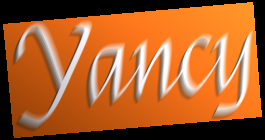
Yancy